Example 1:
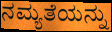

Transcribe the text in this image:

ನಮ್ಯತೆಯನ್ನು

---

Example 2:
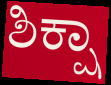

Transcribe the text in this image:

ಶಿಕ್ಷಾ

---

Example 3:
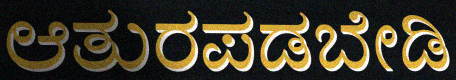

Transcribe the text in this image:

ಆತುರಪಡಬೇಡಿ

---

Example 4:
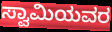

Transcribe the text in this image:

ಸ್ವಾಮಿಯವರ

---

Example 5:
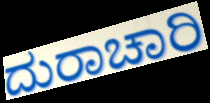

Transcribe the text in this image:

ದುರಾಚಾರಿ